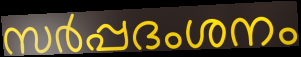
സർപ്പദംശനം